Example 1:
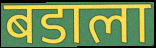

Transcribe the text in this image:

बडाला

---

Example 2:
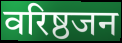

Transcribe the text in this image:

वरिष्ठजन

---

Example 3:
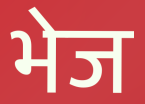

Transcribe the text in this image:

भेज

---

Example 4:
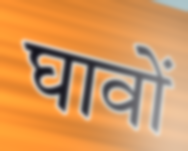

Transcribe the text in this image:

घावों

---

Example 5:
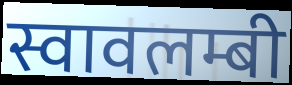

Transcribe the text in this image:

स्वावलम्बी